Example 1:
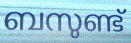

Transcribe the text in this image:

ബസുണ്ട്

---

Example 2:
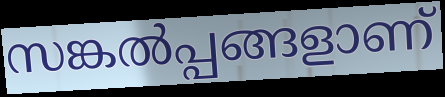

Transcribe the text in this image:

സങ്കൽപ്പങ്ങളാണ്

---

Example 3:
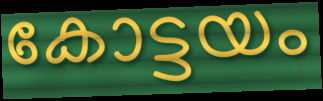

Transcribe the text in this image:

കോട്ടയം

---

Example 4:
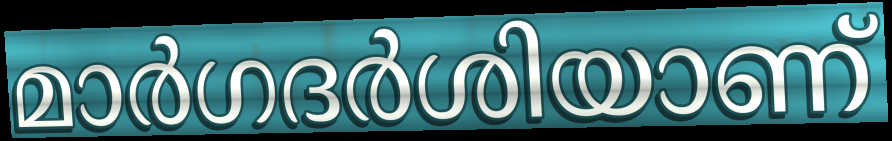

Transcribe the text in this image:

മാർഗദർശിയാണ്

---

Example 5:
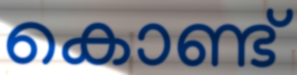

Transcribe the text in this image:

കൊണ്ട്